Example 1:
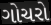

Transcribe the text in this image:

ગોચરો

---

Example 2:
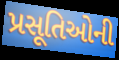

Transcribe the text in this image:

પ્રસૂતિઓની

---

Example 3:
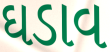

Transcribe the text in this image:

ઘડાવ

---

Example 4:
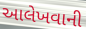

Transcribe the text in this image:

આલેખવાની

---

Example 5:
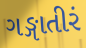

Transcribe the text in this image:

ગઙ્ગાતીરં